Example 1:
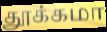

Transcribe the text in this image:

தூக்கமா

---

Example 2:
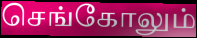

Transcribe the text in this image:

செங்கோலும்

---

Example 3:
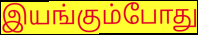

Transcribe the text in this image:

இயங்கும்போது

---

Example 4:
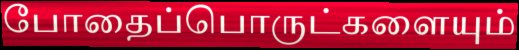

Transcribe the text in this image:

போதைப்பொருட்களையும்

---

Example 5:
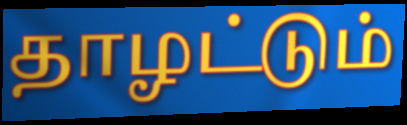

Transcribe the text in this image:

தாழட்டும்